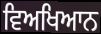
ਵਿਅਖਿਆਨ